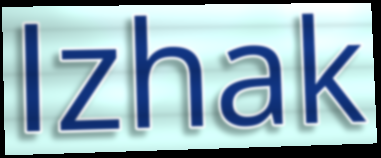
Izhak